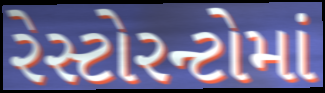
રેસ્ટોરન્ટોમાં